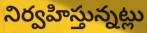
నిర్వహిస్తున్నట్లు